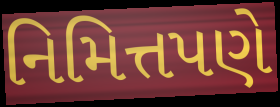
નિમિત્તપણે